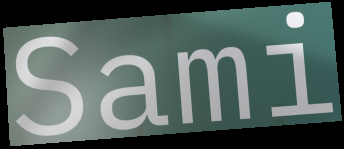
Sami